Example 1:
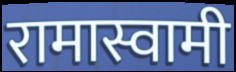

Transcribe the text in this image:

रामास्वामी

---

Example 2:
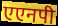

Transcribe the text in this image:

एएनपी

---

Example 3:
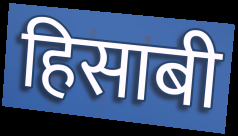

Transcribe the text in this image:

हिसाबी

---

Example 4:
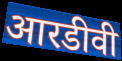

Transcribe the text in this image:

आरडीवी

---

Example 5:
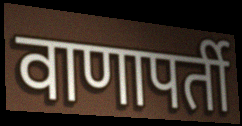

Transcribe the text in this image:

वाणापर्ती